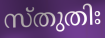
സ്തുതിഃ